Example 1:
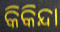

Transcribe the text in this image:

କିକିନ୍ଦା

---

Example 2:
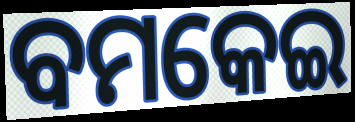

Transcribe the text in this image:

ବମକେଇ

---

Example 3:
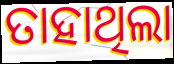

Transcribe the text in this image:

ତାହାଥିଲା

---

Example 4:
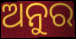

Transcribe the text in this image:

ଅନୁର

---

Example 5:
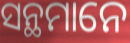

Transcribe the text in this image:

ସନ୍ଥମାନେ